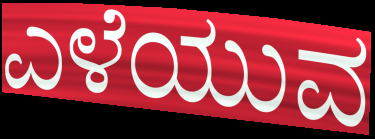
ಎಳೆಯುವ